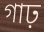
গাঢ়